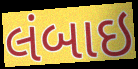
લંબાઇ